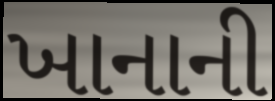
ખાનાની